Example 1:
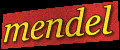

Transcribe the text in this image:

mendel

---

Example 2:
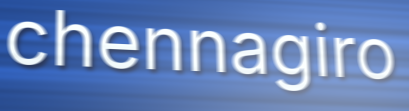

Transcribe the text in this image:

chennagiro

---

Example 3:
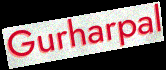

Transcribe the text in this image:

Gurharpal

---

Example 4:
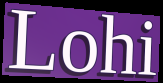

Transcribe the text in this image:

Lohi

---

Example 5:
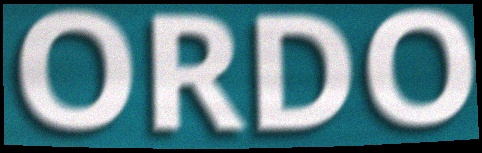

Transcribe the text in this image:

ORDO